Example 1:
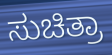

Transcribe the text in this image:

ಸುಚಿತ್ರಾ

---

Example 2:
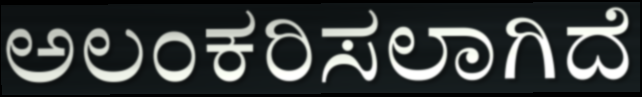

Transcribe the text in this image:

ಅಲಂಕರಿಸಲಾಗಿದೆ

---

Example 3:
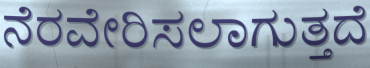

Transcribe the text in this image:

ನೆರವೇರಿಸಲಾಗುತ್ತದೆ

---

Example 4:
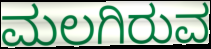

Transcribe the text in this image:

ಮಲಗಿರುವ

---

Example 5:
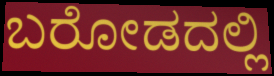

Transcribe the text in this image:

ಬರೋಡದಲ್ಲಿ